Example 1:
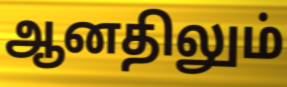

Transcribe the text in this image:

ஆனதிலும்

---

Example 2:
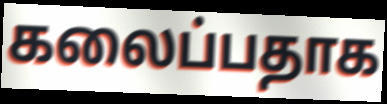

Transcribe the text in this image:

கலைப்பதாக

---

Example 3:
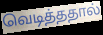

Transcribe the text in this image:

வெடித்ததால்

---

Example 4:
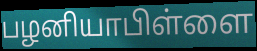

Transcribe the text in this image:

பழனியாபிள்ளை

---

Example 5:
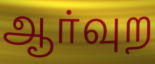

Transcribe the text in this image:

ஆர்வுற